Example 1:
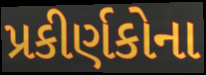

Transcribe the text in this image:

પ્રકીર્ણકોના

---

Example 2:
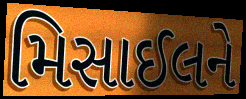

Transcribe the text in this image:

મિસાઈલને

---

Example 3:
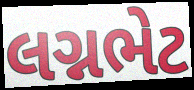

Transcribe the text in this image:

લગ્નભેટ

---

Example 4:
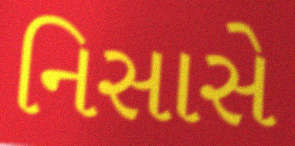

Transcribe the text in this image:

નિસાસે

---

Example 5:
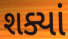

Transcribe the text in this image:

શક્યાં